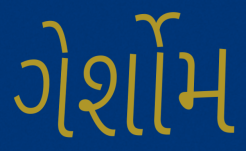
ગેર્શોમ